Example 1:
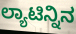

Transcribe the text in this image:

ಲ್ಯಾಟಿನ್ನಿನ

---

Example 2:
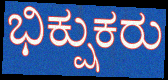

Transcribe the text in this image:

ಭಿಕ್ಷುಕರು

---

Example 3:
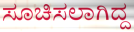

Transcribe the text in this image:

ಸೂಚಿಸಲಾಗಿದ್ದ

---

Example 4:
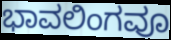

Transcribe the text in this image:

ಭಾವಲಿಂಗವೂ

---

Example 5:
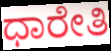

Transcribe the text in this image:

ಧಾರೇತಿ